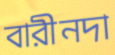
বারীনদা